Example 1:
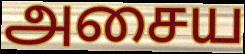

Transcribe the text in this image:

அசைய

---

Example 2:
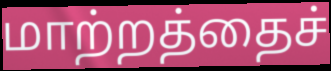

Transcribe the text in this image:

மாற்றத்தைச்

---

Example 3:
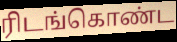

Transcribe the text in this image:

ரிடங்கொண்ட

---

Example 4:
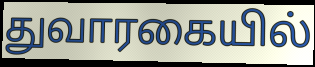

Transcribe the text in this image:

துவாரகையில்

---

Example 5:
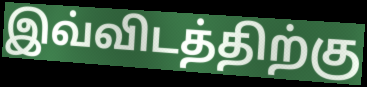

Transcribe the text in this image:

இவ்விடத்திற்கு